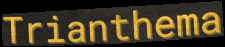
Trianthema